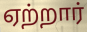
ஏற்றார்